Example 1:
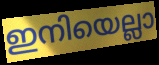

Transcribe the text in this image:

ഇനിയെല്ലാ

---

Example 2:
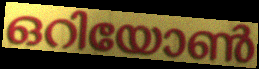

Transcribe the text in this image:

ഒറിയോൺ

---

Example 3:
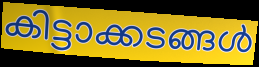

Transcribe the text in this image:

കിട്ടാക്കടങ്ങൾ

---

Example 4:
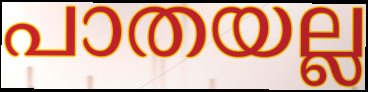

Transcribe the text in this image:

പാതയല്ല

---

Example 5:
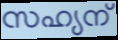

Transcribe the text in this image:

സഹ്യന്